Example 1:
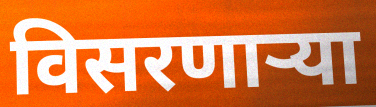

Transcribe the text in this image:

विसरणाऱ्या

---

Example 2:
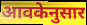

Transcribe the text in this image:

आवकेनुसार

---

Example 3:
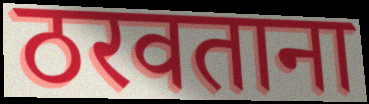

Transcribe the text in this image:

ठरवताना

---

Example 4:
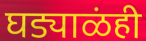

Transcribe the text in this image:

घड्याळंही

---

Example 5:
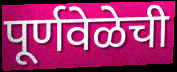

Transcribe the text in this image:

पूर्णवेळेची